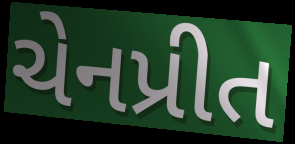
ચેનપ્રીત